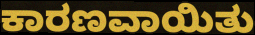
ಕಾರಣವಾಯಿತು